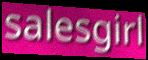
salesgirl